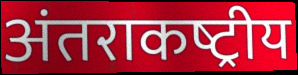
अंतराकष्ट्रीय